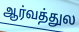
ஆர்வத்துல